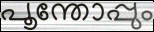
പൂന്തോപ്പും